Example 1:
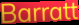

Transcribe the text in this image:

Barratt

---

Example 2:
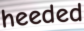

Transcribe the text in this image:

heeded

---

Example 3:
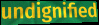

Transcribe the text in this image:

undignified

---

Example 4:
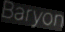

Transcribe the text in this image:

Baryon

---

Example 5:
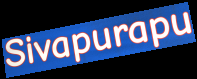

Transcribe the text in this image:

Sivapurapu